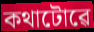
কথাটোৱে